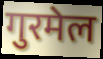
गुरमेल